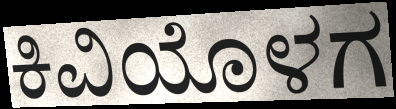
ಕಿವಿಯೊಳಗ